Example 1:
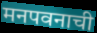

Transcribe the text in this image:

मनपवनाची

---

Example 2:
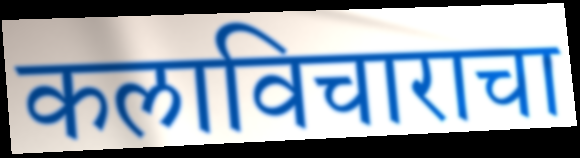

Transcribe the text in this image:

कलाविचाराचा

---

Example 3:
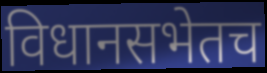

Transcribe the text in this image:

विधानसभेतच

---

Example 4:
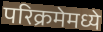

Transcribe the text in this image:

परिक्रमेमध्ये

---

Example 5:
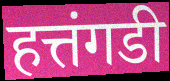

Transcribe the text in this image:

हत्तंगडी